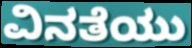
ವಿನತೆಯು